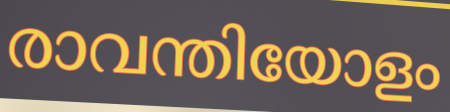
രാവന്തിയോളം